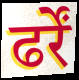
ढर्रें